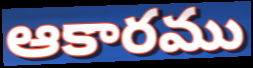
ఆకారము